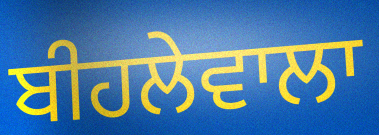
ਬੀਹਲੇਵਾਲਾ